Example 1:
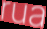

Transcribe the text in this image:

rua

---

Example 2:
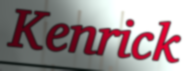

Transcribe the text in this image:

Kenrick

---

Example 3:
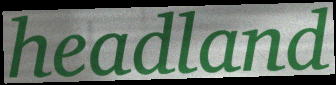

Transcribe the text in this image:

headland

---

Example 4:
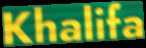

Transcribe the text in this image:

Khalifa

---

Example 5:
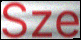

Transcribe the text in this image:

Sze